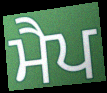
ਮੈਪ